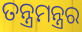
ତନ୍ତ୍ରମନ୍ତ୍ରର